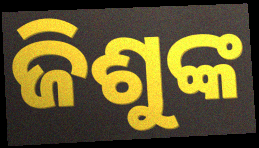
ଜିଶୁଙ୍କ